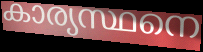
കാര്യസ്ഥനെ